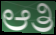
ಆತಿ